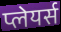
प्लेयर्स